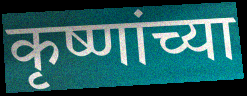
कृष्णांच्या